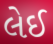
લેઈ